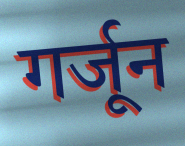
गर्जून